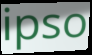
ipso